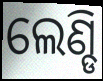
ଲେଣ୍ଡି